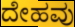
ದೇಹವು